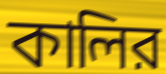
কালির